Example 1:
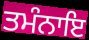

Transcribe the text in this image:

ਤਮੰਨਾਇ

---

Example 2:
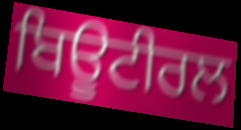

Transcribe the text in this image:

ਬਿਊਟੀਰਲ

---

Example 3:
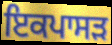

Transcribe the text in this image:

ਇਕਪਾਸੜ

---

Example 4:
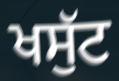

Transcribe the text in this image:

ਖਸੁੱਟ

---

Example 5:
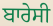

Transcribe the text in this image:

ਬਾਰੇਸੀ